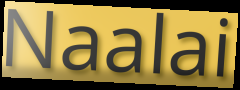
Naalai